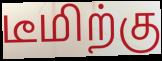
டீமிற்கு